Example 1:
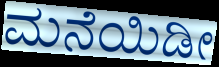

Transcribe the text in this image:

ಮನೆಯಿಡೀ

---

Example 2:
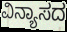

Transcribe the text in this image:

ವಿನ್ಯಾಸದ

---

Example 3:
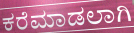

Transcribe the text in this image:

ಕರೆಮಾಡಲಾಗಿ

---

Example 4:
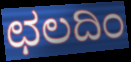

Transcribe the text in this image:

ಛಲದಿಂ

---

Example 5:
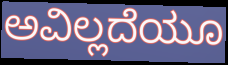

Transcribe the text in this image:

ಅವಿಲ್ಲದೆಯೂ